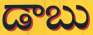
డాబు